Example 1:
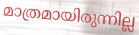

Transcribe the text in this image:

മാത്രമായിരുന്നില്ല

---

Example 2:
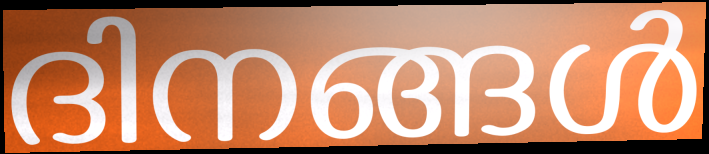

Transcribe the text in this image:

ദിനങ്ങൾ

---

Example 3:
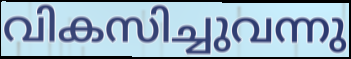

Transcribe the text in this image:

വികസിച്ചുവന്നു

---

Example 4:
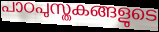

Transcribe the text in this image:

പാഠപുസ്തകങ്ങളുടെ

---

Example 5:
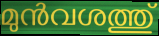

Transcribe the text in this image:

മുൻവശത്തു്